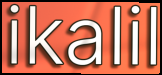
ikalil